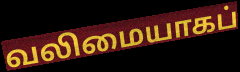
வலிமையாகப்